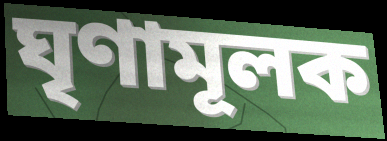
ঘৃণামূলক